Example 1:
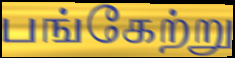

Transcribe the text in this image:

பங்கேற்று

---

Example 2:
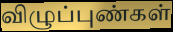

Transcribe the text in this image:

விழுப்புண்கள்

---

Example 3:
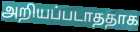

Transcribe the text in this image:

அறியப்படாததாக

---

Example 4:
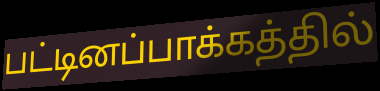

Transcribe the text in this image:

பட்டினப்பாக்கத்தில்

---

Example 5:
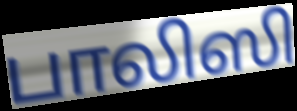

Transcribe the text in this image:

பாலிஸி